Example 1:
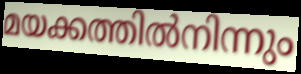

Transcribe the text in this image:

മയക്കത്തിൽനിന്നും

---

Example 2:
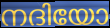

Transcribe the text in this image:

നദിയോ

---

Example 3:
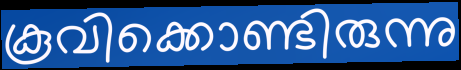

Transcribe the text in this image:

കൂവിക്കൊണ്ടിരുന്നു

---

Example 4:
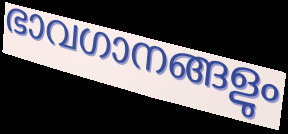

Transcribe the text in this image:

ഭാവഗാനങ്ങളും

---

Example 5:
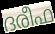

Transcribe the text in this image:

ദരീഫ